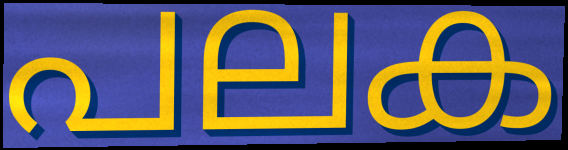
പലക